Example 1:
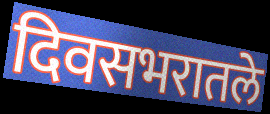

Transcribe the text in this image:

दिवसभरातले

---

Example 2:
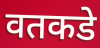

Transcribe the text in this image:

वतकडे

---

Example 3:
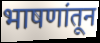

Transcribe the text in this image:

भाषणांतून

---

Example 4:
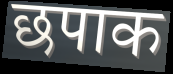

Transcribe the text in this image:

छपाक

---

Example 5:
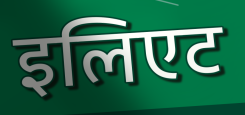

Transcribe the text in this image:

इलिएट